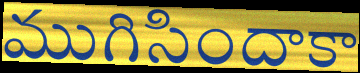
ముగిసిందాకా